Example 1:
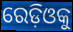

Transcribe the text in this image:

ରେଡ଼ିଓକୁ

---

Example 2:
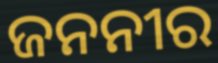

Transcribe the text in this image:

ଜନନୀର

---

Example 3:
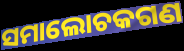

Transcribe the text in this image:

ସମାଲୋଚକଗଣ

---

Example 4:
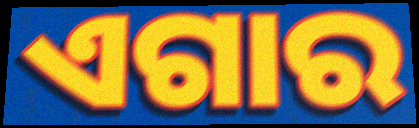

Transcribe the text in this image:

ଏଗାର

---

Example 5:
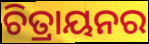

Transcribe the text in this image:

ଚିତ୍ରାୟନର